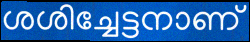
ശശിച്ചേട്ടനാണ്